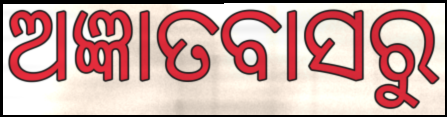
ଅଜ୍ଞାତବାସରୁ